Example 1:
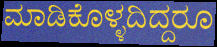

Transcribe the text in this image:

ಮಾಡಿಕೊಳ್ಳದಿದ್ದರೂ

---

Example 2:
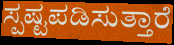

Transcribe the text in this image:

ಸ್ಪಷ್ಟಪಡಿಸುತ್ತಾರೆ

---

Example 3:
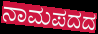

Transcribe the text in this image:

ನಾಮಪದದ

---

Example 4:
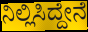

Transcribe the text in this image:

ನಿಲ್ಲಿಸಿದ್ದೇನೆ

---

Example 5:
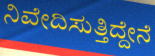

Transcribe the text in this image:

ನಿವೇದಿಸುತ್ತಿದ್ದೇನೆ